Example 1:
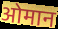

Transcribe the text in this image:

ओमान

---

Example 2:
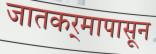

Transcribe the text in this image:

जातकर्मापासून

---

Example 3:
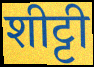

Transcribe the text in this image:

शीट्टी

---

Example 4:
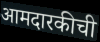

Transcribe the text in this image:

आमदारकीची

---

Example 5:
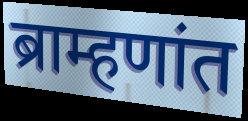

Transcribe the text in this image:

ब्राम्हणांत